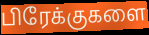
பிரேக்குகளை